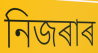
নিজৰাৰ